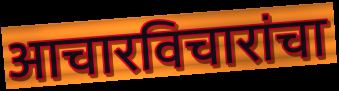
आचारविचारांचा